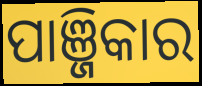
ପାଞ୍ଜିକାର